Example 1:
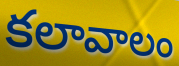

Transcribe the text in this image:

కలావాలం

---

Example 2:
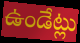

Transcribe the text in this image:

ఉండేట్లు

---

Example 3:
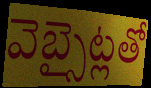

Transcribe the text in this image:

వెబ్సైట్లతో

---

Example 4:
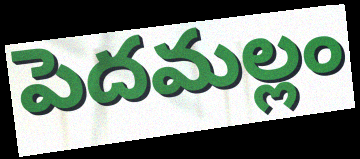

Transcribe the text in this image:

పెదమల్లం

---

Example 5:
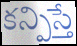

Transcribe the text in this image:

కన్పిస్తే